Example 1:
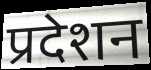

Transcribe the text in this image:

प्रदेशन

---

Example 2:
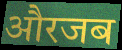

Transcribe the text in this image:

औरजब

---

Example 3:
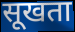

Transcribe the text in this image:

सूखता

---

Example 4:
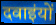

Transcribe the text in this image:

दवाइंयों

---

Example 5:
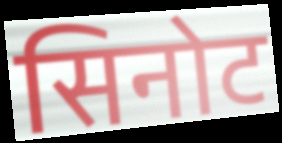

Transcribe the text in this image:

सिनोट